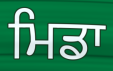
ਮਿਡਾ